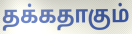
தக்கதாகும்